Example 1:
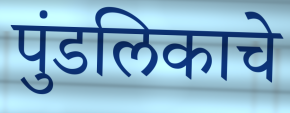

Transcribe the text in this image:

पुंडलिकाचे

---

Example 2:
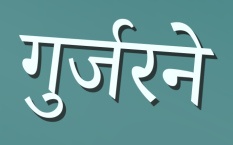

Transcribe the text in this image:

गुर्जरने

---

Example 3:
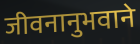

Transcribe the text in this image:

जीवनानुभवाने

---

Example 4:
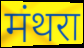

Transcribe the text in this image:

मंथरा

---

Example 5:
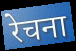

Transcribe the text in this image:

रेचना